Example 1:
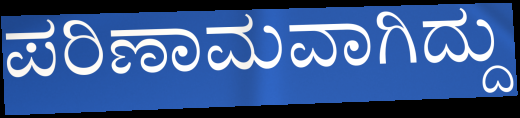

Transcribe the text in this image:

ಪರಿಣಾಮವಾಗಿದ್ದು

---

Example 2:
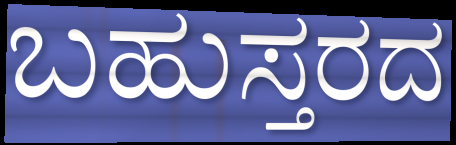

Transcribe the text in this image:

ಬಹುಸ್ತರದ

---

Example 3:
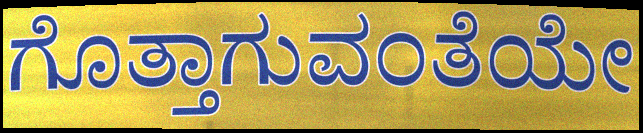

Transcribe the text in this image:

ಗೊತ್ತಾಗುವಂತೆಯೇ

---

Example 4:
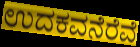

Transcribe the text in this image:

ಉದಕವನೆರೆವೆ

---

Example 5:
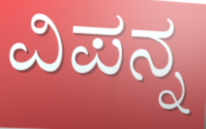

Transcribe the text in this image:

ವಿಪನ್ನ